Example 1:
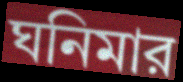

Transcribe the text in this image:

ঘনিমার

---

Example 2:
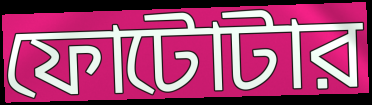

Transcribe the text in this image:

ফোটোটার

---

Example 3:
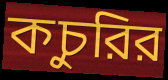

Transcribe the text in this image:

কচুরির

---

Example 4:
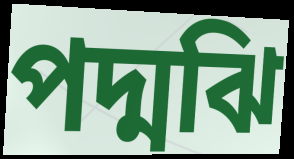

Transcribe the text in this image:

পদ্মঝি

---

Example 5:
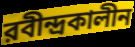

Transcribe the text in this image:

রবীন্দ্রকালীন